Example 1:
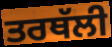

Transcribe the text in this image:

ਤਰਥੱਲੀ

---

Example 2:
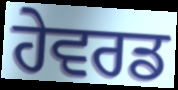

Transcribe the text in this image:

ਹੇਵਰਡ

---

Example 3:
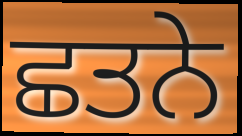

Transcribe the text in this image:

ਛਤਨੇ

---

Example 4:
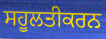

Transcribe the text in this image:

ਸਹੂਲਤੀਕਰਨ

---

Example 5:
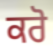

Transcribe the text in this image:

ਕਰੋ